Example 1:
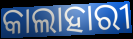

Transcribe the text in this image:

କାଲାହାରୀ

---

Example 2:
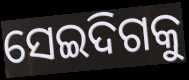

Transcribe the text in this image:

ସେଇଦିଗକୁ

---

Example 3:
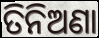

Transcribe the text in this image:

ତିନିଅଣା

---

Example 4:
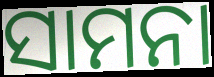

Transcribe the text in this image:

ସାମନା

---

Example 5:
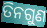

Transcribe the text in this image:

ତିନଗୁଣ